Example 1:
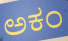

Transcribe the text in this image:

ಅಕಂ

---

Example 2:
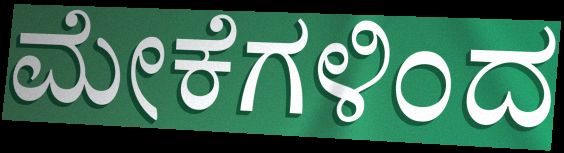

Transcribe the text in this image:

ಮೇಕೆಗಳಿಂದ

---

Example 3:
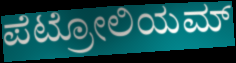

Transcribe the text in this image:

ಪೆಟ್ರೋಲಿಯಮ್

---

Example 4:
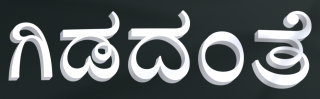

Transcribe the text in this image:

ಗಿಡದಂತೆ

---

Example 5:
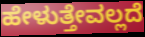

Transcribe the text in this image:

ಹೇಳುತ್ತೇವಲ್ಲದೆ